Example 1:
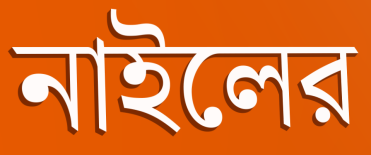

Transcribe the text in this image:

নাইলের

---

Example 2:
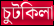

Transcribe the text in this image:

চুটকিলা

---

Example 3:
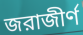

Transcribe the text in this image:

জরাজীর্ণ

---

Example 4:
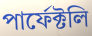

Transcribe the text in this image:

পার্ফেক্টলি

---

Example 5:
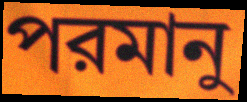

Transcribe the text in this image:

পরমানু